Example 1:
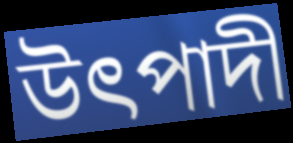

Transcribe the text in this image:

উৎপাদী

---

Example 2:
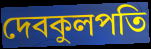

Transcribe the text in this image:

দেবকুলপতি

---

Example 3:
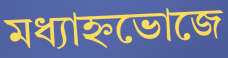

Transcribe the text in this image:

মধ্যাহ্নভোজে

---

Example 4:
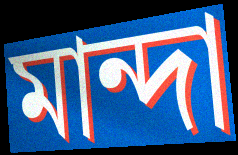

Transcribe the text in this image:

মান্দা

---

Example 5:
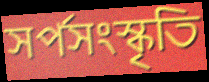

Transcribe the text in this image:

সর্পসংস্কৃতি